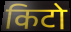
किटो